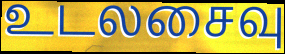
உடலசைவு